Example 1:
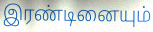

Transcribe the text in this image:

இரண்டினையும்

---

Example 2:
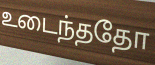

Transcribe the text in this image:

உடைந்ததோ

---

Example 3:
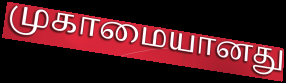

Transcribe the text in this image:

முகாமையானது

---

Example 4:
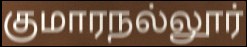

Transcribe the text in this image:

குமாரநல்லூர்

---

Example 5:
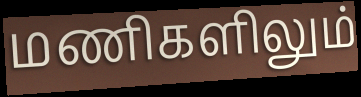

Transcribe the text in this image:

மணிகளிலும்